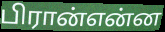
பிரான்என்ன